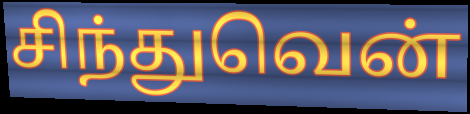
சிந்துவென்